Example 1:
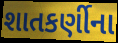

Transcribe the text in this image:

શાતકર્ણીના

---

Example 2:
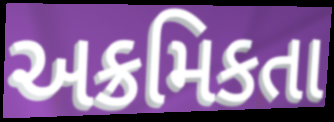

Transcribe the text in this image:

અક્રમિકતા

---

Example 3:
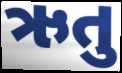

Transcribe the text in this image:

ઋતુ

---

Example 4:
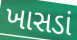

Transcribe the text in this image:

ખાસડાં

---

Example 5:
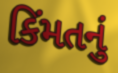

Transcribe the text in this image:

કિંમતનું